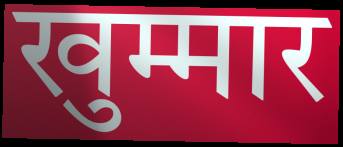
खुम्मार